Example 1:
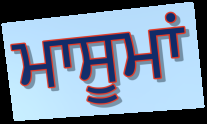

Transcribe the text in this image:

ਮਾਸੂਮਾਂ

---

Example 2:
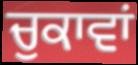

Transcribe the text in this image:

ਚੁਕਾਵਾਂ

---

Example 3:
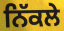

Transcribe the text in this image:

ਨਿੱਕਲੇ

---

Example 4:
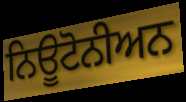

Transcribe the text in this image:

ਨਿਊਟੋਨੀਅਨ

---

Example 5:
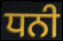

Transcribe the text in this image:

ਧਨੀ